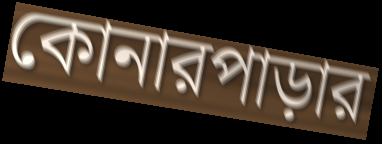
কোনারপাড়ার